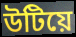
উটিয়ে